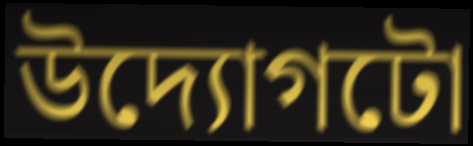
উদ্যোগটো